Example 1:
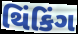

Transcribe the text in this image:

થિંકિંગ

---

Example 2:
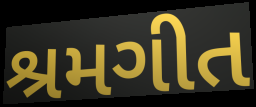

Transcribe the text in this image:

શ્રમગીત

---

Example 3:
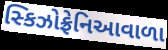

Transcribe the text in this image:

સ્કિઝોફ્રેનિઆવાળા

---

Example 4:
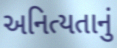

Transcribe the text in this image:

અનિત્યતાનું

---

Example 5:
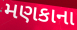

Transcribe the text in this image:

મણકાના